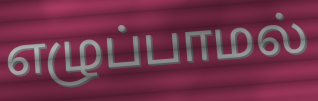
எழுப்பாமல்